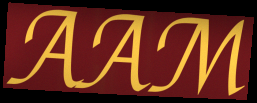
AAM